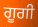
ਗੂਗੀ